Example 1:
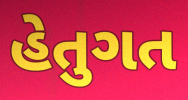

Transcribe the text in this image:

હેતુગત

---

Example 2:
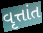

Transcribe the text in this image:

વૃત્તાંત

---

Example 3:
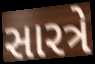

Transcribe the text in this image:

સારત્રે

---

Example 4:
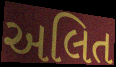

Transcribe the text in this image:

અલિત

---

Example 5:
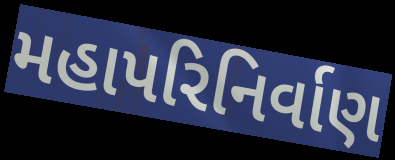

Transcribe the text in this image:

મહાપરિનિર્વાણ